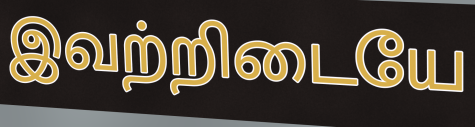
இவற்றிடையே